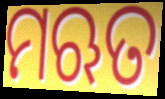
ମଋତ